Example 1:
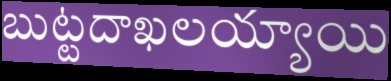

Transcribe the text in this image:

బుట్టదాఖలయ్యాయి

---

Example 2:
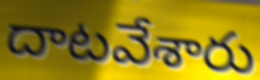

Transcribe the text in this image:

దాటవేశారు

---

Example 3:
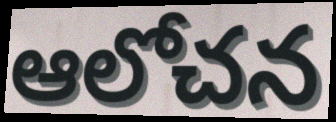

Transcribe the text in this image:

ఆలోచన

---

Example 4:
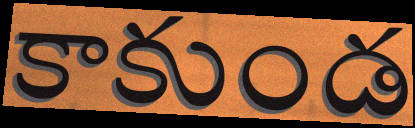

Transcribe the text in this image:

కాకుండ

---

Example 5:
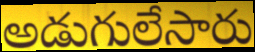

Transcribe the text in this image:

అడుగులేసారు